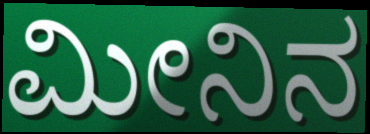
ಮೀನಿನ